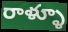
రాళ్ళూ